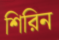
শিরিন